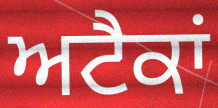
ਅਟੈਕਾਂ